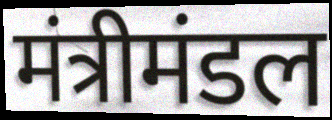
मंत्रीमंडल